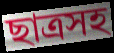
ছাত্রসহ